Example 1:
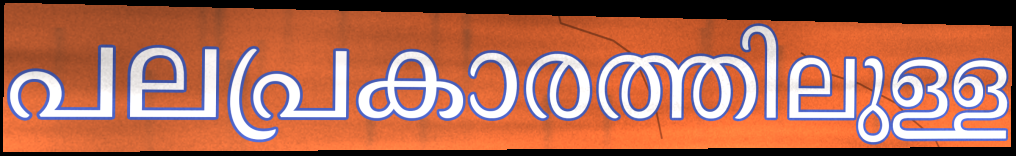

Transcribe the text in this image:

പലപ്രകാരത്തിലുള്ള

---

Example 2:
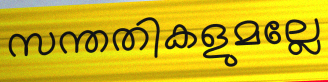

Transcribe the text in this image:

സന്തതികളുമല്ലേ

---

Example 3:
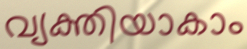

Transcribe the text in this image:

വ്യക്തിയാകാം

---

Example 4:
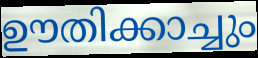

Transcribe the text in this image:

ഊതിക്കാച്ചും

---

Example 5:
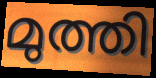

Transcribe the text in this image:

മുത്തി